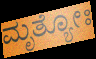
ಮೃತ್ಯೋಃ